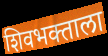
शिवभक्ताला